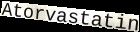
Atorvastatin